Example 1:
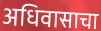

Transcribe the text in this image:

अधिवासाचा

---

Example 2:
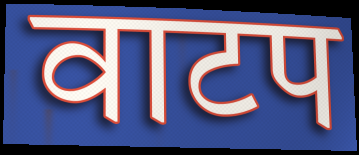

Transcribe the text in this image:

वाटप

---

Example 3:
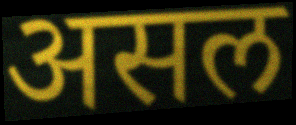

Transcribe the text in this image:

असल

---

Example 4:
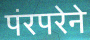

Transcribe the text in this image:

पंरपरेने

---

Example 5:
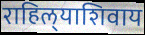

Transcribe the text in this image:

राहिल्याशिवाय